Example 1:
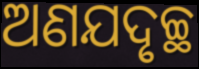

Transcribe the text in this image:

ଅଣଯଦୃଚ୍ଛ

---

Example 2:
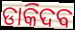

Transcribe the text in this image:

ଡାକିଦବ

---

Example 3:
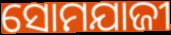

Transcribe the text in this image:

ସୋମଯାଜୀ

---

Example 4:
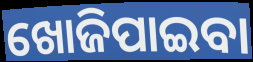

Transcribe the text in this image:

ଖୋଜିପାଇବା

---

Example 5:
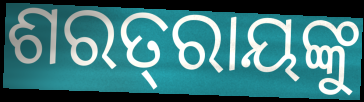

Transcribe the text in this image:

ଶରତ୍‌ରାୟଙ୍କୁ